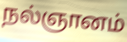
நல்ஞானம்